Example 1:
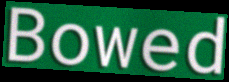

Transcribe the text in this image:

Bowed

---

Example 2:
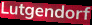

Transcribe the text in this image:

Lutgendorf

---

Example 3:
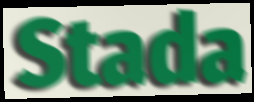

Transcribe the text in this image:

Stada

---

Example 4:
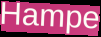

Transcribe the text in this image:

Hampe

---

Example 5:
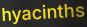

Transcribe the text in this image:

hyacinths